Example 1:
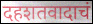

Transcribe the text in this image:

दहशतवादाचं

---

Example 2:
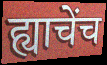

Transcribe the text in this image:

ह्याचेंच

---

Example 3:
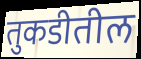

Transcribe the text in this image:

तुकडीतील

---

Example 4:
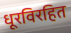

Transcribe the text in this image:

धूरविरहित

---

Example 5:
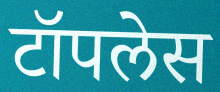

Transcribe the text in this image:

टॉपलेस